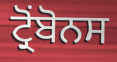
ਟ੍ਰੋਂਬੋਨਸ